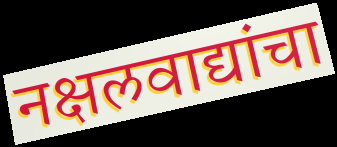
नक्षलवाद्यांचा